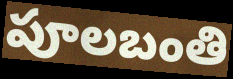
పూలబంతి